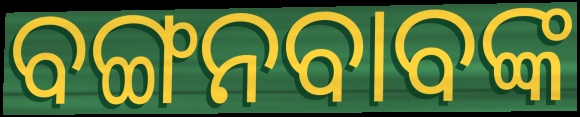
ବଙ୍ଗନବାବଙ୍କ